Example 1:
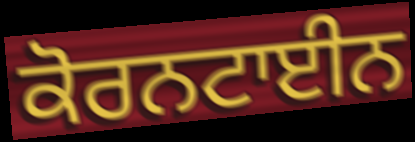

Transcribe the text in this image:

ਕੋਰਨਟਾਈਨ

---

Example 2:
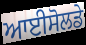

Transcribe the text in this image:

ਆਈਸੋਲਡੇ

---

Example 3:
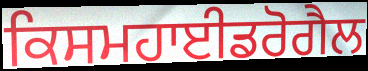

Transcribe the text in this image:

ਕਿਸਮਹਾਈਡਰੋਗੈਲ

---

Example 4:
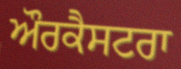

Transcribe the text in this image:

ਔਰਕੈਸਟਰਾ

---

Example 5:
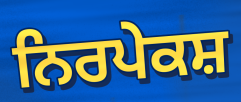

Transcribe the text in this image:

ਨਿਰਪੇਕਸ਼